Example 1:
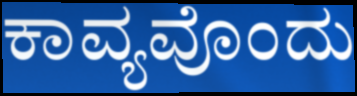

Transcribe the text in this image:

ಕಾವ್ಯವೊಂದು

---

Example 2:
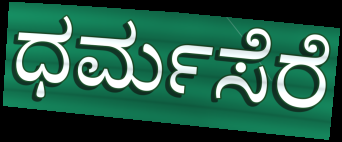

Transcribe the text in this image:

ಧರ್ಮಸೆರೆ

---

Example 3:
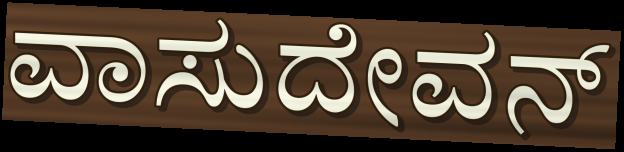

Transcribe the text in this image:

ವಾಸುದೇವನ್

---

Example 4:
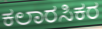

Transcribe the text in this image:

ಕಲಾರಸಿಕರ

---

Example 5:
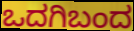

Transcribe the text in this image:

ಒದಗಿಬಂದ